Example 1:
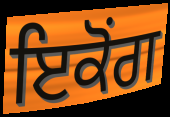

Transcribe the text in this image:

ਇਕੋਂਗ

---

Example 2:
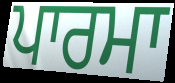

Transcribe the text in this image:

ਪਾਰਮਾ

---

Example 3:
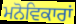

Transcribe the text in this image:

ਮਨੋਵਿਕਾਰਾਂ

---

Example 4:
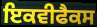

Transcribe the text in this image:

ਇਕਵੀਫੈਕਸ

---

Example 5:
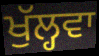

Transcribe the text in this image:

ਖੁੱਲ੍ਹਵਾ